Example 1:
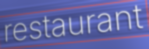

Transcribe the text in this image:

restaurant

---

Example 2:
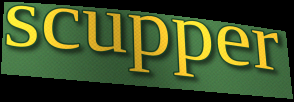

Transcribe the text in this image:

scupper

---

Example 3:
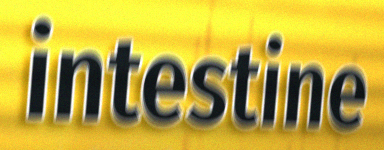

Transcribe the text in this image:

intestine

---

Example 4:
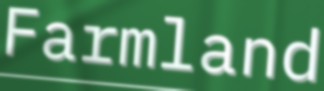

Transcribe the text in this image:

Farmland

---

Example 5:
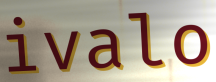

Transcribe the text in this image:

ivalo